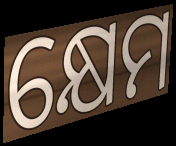
କ୍ଷେମ